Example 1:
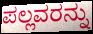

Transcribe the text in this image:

ಪಲ್ಲವರನ್ನು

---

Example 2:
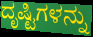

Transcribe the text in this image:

ದೃಷ್ಟಿಗಳನ್ನು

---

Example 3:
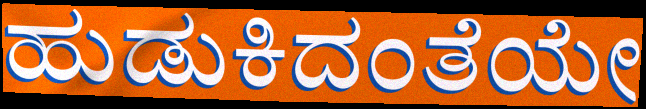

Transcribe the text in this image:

ಹುಡುಕಿದಂತೆಯೇ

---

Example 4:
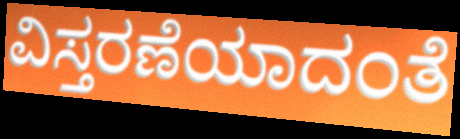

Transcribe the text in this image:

ವಿಸ್ತರಣೆಯಾದಂತೆ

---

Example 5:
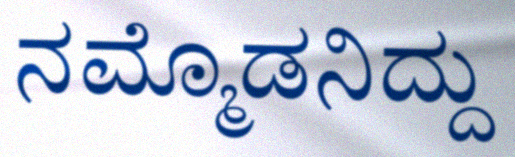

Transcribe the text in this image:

ನಮ್ಮೊಡನಿದ್ದು